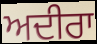
ਅਦੀਰਾ